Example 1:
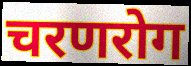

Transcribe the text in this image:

चरणरोग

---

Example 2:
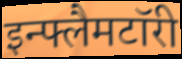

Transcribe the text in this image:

इन्फ्लैमटॉरी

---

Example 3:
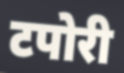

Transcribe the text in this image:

टपोरी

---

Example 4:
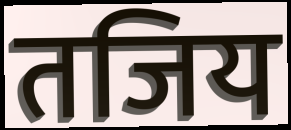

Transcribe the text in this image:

तजिय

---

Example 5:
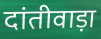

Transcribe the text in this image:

दांतीवाड़ा